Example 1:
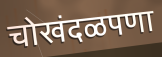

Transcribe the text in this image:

चोखंदळपणा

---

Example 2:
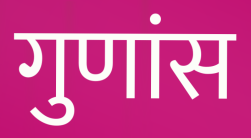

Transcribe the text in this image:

गुणांस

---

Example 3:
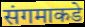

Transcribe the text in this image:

संगमाकडे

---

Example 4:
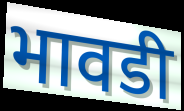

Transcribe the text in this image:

भावडी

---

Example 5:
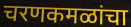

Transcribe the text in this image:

चरणकमळांचा